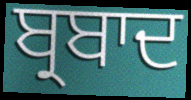
ਬ੍ਰਬਾਦ